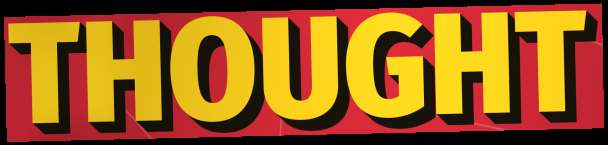
THOUGHT